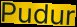
Pudur